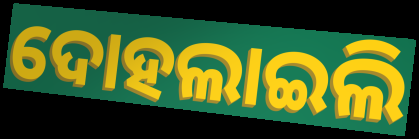
ଦୋହଲାଇଲି